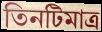
তিনটিমাত্র